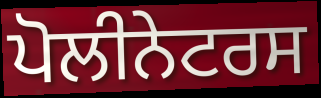
ਪੋਲੀਨੇਟਰਸ